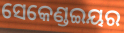
ସେକେଣ୍ଡଇୟର